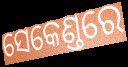
ସେକେଣ୍ଡରେ